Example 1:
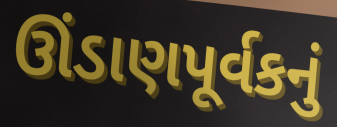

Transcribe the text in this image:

ઊંડાણપૂર્વકનું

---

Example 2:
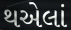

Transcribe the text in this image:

થએલાં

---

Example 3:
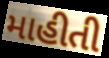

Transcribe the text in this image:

માહીતી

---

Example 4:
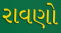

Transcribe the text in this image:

રાવણો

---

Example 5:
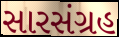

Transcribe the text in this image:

સારસંગ્રહ